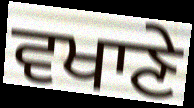
ਵਖਾਣੇ